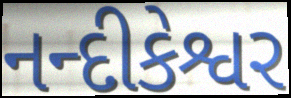
નન્દીકેશ્વર